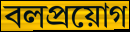
বলপ্ৰয়োগ